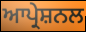
ਆਪ੍ਰੇਸ਼ਨਲ